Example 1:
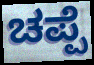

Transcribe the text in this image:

ಚಪ್ಪೆ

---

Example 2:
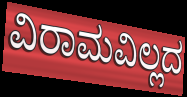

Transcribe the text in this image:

ವಿರಾಮವಿಲ್ಲದ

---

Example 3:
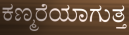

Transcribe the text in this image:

ಕಣ್ಮರೆಯಾಗುತ್ತ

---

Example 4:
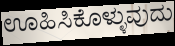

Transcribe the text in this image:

ಊಹಿಸಿಕೊಳ್ಳುವುದು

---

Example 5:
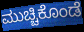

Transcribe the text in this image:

ಮುಚ್ಚಿಕೊಂಡೆ